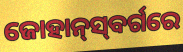
ଜୋହାନ୍‌ସ୍‌ବର୍ଗରେ